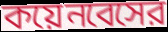
কয়েনবেসের